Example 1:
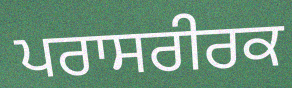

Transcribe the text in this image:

ਪਰਾਸਰੀਰਕ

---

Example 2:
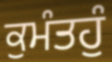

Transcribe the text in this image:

ਕੁਮੰਤਹੁੰ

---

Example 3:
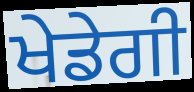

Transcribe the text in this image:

ਖੇਡੇਗੀ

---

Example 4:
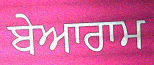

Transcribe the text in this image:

ਬੇਆਰਾਮ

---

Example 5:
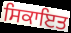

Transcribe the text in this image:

ਸਿਕਾਇਤ